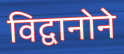
विद्वानोने